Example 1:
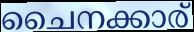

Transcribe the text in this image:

ചൈനക്കാര്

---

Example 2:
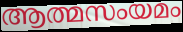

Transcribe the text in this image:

ആത്മസംയമം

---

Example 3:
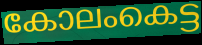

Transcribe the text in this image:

കോലംകെട്ട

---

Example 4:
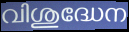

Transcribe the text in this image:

വിശുദ്ധേന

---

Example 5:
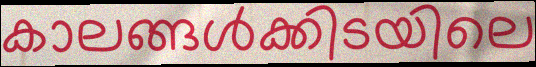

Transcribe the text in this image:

കാലങ്ങൾക്കിടയിലെ